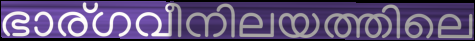
ഭാര്ഗവീനിലയത്തിലെ